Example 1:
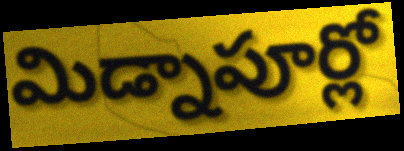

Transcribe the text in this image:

మిడ్నాపూర్లో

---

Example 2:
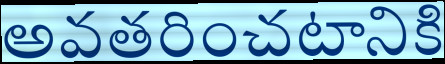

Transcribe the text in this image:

అవతరించటానికి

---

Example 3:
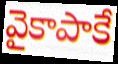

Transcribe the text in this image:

వైకాపాకే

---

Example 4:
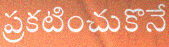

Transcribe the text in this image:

ప్రకటించుకొనే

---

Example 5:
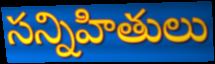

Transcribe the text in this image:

సన్నిహితులు